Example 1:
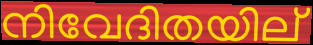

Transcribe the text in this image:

നിവേദിതയില്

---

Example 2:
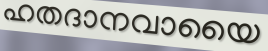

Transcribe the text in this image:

ഹതദാനവായൈ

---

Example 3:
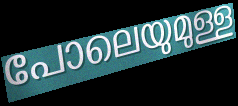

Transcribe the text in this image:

പോലെയുമുള്ള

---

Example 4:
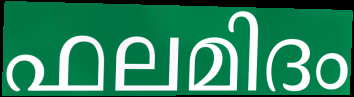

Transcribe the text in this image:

ഫലമിദം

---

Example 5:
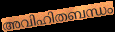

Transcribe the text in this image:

അവിഹിതബന്ധം